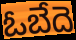
ఓబేదె